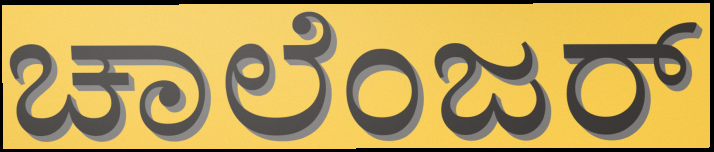
ಚಾಲೆಂಜರ್